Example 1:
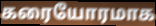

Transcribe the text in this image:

கரையோரமாக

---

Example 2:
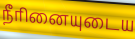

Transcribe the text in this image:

நீரினையுடைய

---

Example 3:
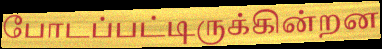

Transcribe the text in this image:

போடப்பட்டிருக்கின்றன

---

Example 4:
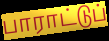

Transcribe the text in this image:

பாராட்டுப்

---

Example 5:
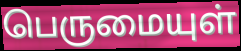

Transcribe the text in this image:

பெருமையுள்